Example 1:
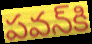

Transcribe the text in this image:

పవన్‌కి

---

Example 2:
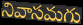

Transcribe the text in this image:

నివాసమగు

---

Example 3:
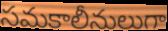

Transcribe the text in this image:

సమకాలీనులుగా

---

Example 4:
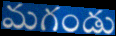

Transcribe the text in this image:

మగండు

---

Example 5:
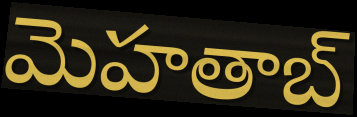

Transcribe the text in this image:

మెహతాబ్